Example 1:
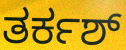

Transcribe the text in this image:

ತರ್ಕಶ್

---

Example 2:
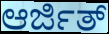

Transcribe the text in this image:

ಆರ್ಜಿತ್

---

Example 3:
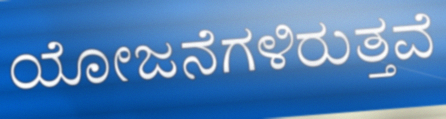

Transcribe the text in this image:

ಯೋಜನೆಗಳಿರುತ್ತವೆ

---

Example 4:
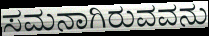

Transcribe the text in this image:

ಸಮನಾಗಿರುವವನು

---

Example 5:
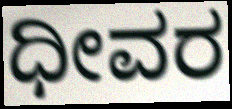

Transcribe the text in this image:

ಧೀವರ